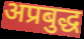
अप्रबुद्ध